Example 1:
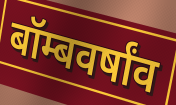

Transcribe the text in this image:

बॉम्बवर्षांव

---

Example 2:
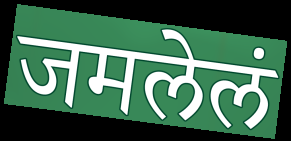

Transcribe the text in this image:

जमलेलं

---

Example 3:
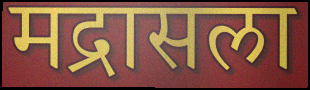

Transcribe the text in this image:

मद्रासला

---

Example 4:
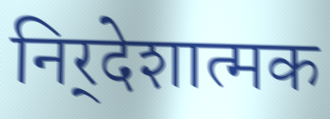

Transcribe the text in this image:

निर्देशात्मक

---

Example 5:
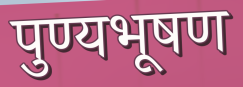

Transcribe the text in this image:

पुण्यभूषण